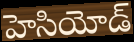
హెసియోడ్